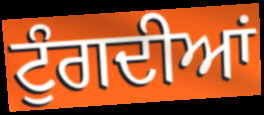
ਟੁੰਗਦੀਆਂ